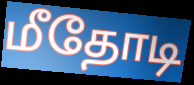
மீதோடி